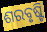
ଶରବୃଷ୍ଟି